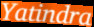
Yatindra